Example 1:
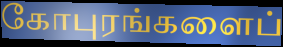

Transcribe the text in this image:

கோபுரங்களைப்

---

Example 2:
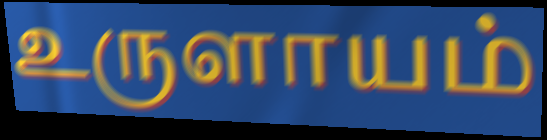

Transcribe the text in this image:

உருளாயம்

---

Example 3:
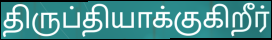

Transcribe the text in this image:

திருப்தியாக்குகிறீர்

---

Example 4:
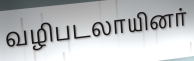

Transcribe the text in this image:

வழிபடலாயினர்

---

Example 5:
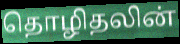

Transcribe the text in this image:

தொழிதலின்